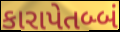
કારાપેતબ્બં